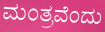
ಮಂತ್ರವೆಂದು